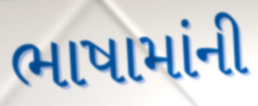
ભાષામાંની